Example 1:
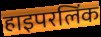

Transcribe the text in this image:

हाइपरलिंक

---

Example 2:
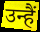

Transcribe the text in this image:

उन्‍हैं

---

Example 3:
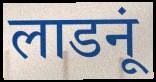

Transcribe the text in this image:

लाडनूं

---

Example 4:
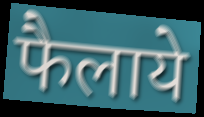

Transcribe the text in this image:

फैलाये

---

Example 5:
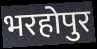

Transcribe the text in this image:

भरहोपुर